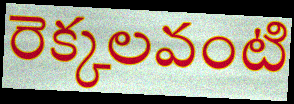
రెక్కలవంటి